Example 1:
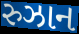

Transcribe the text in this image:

રુઝાન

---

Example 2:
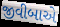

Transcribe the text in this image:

જીવીબાએ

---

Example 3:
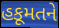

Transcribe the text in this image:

હકૂમતને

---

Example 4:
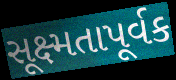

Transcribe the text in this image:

સૂક્ષ્મતાપૂર્વક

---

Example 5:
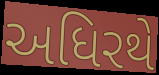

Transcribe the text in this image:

અધિરથે